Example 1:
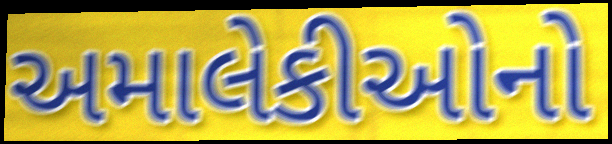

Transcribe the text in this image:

અમાલેકીઓનો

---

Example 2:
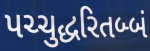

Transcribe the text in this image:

પચ્ચુદ્ધરિતબ્બં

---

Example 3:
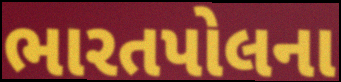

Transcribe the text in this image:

ભારતપોલના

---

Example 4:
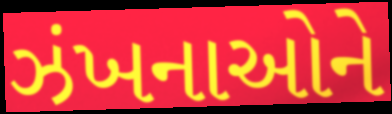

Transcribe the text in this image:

ઝંખનાઓને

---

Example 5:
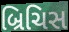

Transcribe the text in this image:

બ્રિચિસ